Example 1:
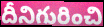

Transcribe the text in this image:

దీనిగురించి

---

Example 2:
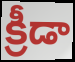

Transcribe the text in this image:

క్రీడా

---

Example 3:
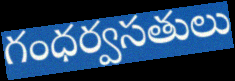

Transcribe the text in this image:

గంధర్వసతులు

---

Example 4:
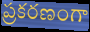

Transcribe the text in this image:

ప్రకరణంగా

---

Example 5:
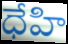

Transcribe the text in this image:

ధేహి